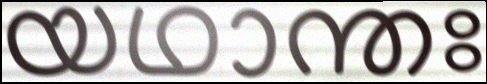
യഥാന്തഃ